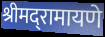
श्रीमद्‌रामायणे